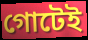
গোটেই